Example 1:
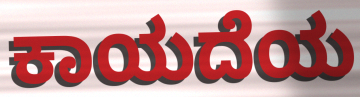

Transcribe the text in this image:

ಕಾಯದೆಯ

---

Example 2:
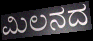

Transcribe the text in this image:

ಮಿಲನದ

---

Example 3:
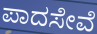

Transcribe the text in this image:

ಪಾದಸೇವೆ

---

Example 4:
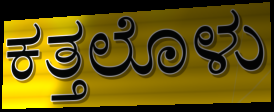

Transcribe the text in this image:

ಕತ್ತಲೊಳು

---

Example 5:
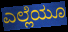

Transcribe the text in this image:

ಎಲ್ಲೆಯೂ